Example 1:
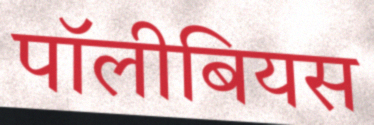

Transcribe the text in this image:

पॉलीबियस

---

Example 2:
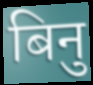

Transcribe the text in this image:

बिनु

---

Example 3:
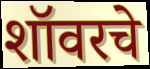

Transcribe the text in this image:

शॉवरचे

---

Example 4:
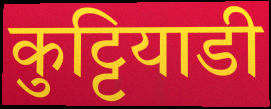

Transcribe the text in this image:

कुट्टियाडी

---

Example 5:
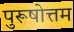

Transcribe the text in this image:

पुरूषोत्तम